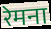
रेमना